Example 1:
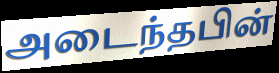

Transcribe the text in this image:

அடைந்தபின்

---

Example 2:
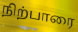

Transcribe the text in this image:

நிற்பாரை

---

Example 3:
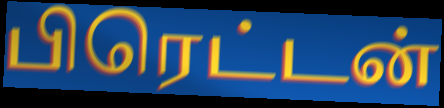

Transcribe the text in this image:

பிரெட்டன்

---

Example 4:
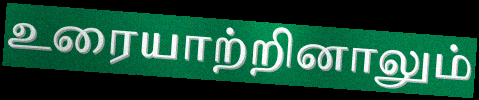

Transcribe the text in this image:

உரையாற்றினாலும்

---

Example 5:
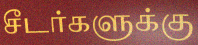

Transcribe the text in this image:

சீடர்களுக்கு